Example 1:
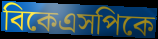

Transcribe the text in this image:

বিকেএসপিকে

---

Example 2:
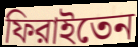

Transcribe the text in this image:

ফিরাইতেন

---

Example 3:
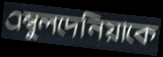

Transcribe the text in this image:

এম্বুলদেনিয়াকে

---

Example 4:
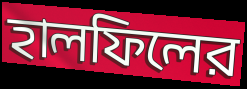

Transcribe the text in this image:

হালফিলের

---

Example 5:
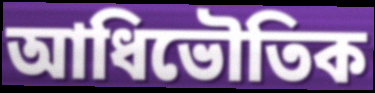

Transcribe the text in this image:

আধিভৌতিক